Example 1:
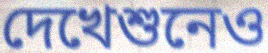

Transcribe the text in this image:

দেখেশুনেও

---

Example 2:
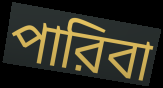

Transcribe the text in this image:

পারিবা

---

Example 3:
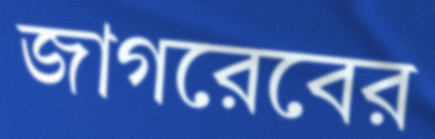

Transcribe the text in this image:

জাগরেবের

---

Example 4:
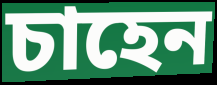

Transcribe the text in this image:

চাহেন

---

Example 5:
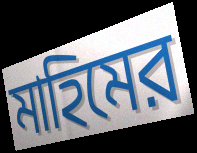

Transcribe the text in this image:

মাহিমের